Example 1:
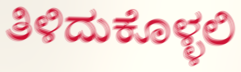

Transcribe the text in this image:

ತಿಳಿದುಕೊಳ್ಳಲಿ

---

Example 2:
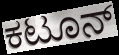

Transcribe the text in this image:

ಕಟೂನ್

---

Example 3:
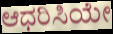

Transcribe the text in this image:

ಆಧರಿಸಿಯೇ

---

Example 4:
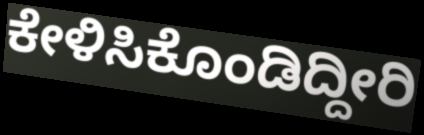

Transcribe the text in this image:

ಕೇಳಿಸಿಕೊಂಡಿದ್ದೀರಿ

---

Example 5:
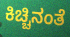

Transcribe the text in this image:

ಕಿಚ್ಚಿನಂತೆ